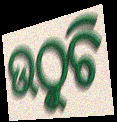
ଉଠୁଚି